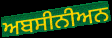
ਅਬਸੀਨੀਅਨ